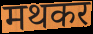
मथकर